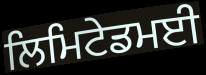
ਲਿਮਿਟੇਡਮਈ